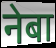
नेबा